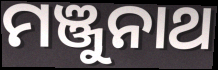
ମଞ୍ଜୁନାଥ